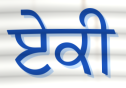
ਏਕੀ